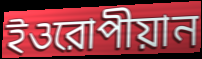
ইওরোপীয়ান